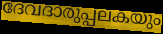
ദേവദാരുപ്പലകയും